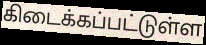
கிடைக்கப்பட்டுள்ள